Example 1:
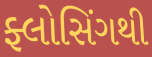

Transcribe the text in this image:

ફ્લોસિંગથી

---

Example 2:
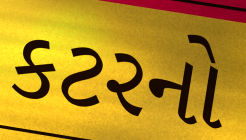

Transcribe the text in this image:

કટરનો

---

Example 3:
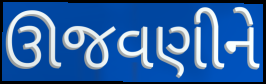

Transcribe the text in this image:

ઊજવણીને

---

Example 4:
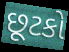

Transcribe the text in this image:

છૂટકો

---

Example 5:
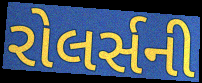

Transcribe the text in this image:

રોલર્સની